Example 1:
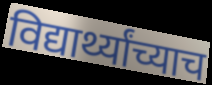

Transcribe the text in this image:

विद्यार्थ्यांच्याच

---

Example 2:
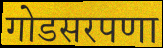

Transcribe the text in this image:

गोडसरपणा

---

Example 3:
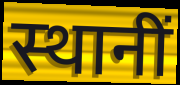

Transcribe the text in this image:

स्थानीं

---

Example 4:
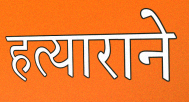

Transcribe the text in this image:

हत्याराने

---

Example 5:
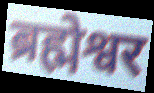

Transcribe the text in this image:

ब्रह्मेश्वर